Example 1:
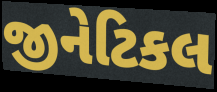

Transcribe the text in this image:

જીનેટિકલ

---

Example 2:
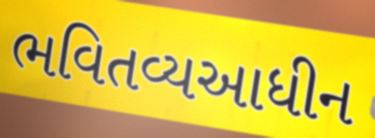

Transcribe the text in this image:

ભવિતવ્યઆધીન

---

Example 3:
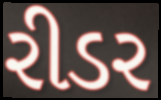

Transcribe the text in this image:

રીડર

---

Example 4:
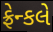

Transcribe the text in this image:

ફ્રેન્કલે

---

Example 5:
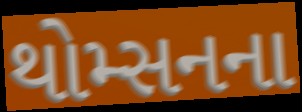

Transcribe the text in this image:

થોમ્સનના